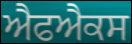
ਐਫਐਕਸ